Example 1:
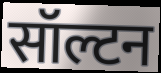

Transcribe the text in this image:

सॉल्टन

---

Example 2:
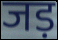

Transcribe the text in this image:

जड़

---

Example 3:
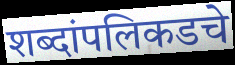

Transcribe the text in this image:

शब्दांपलिकडचे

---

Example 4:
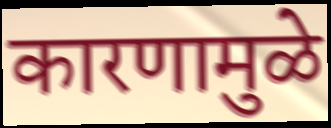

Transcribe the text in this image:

कारणामुळे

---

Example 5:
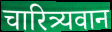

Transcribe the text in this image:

चारित्र्यवान